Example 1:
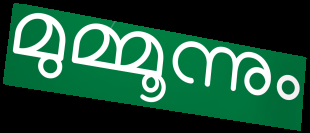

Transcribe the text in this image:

മുമ്മൂന്നും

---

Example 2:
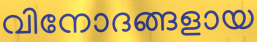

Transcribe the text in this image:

വിനോദങ്ങളായ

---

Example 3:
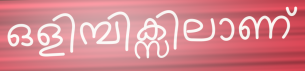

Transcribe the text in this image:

ഒളിമ്പിക്സിലാണ്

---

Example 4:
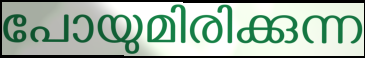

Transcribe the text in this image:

പോയുമിരിക്കുന്ന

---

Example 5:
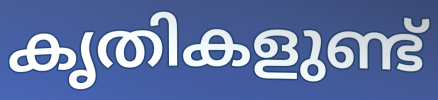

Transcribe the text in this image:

കൃതികളുണ്ട്